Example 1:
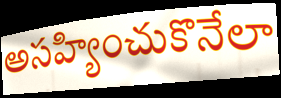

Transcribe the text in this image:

అసహ్యించుకొనేలా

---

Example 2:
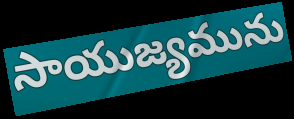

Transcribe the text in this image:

సాయుజ్యమును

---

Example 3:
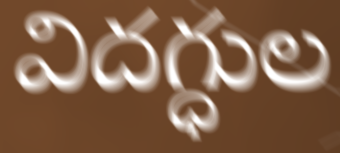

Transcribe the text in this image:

విదగ్ధుల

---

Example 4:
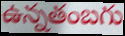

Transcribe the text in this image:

ఉన్నతంబగు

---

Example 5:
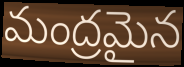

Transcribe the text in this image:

మంద్రమైన